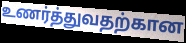
உணர்த்துவதற்கான